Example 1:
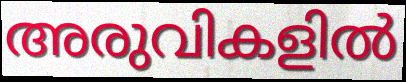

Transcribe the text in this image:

അരുവികളിൽ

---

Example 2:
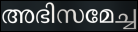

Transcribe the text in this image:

അഭിസമേച്ച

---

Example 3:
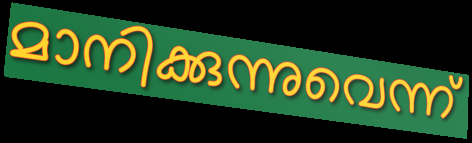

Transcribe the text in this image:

മാനിക്കുന്നുവെന്ന്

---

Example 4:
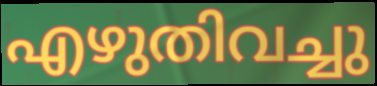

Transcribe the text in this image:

എഴുതിവച്ചു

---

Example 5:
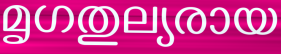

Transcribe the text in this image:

മൃഗതുല്യരായ